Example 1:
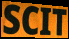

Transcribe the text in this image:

SCIT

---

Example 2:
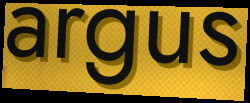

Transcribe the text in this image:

argus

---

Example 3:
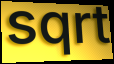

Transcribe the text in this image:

sqrt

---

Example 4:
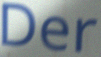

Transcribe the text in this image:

Der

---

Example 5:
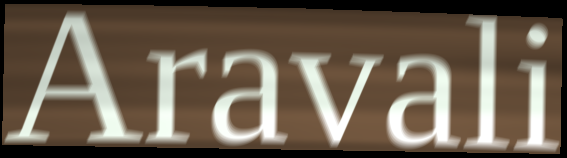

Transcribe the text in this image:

Aravali